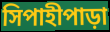
সিপাহীপাড়া